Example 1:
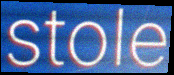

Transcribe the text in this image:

stole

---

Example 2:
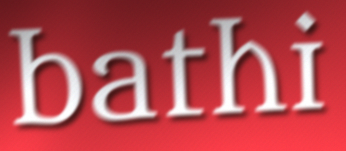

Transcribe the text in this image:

bathi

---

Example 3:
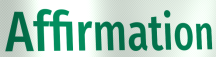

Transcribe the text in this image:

Affirmation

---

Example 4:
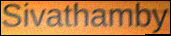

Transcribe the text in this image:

Sivathamby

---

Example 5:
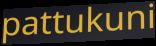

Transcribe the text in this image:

pattukuni